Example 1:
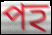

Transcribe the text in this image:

পহ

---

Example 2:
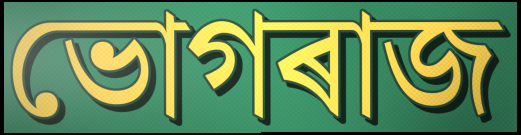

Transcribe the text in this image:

ভোগৰাজ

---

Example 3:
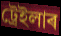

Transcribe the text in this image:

ট্ৰেইলাৰ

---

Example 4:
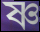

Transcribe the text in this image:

ষ্ণ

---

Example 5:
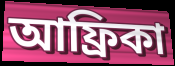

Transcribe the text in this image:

আফ্ৰিকা